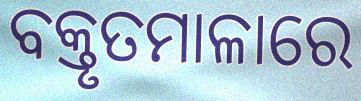
ବକ୍ତୃତମାଳାରେ